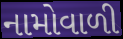
નામોવાળી